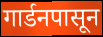
गार्डनपासून